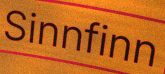
Sinnfinn